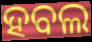
ହବଲ